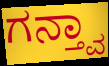
ಗನ್ತ್ವಾ